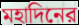
মহাদিনের